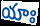
యాః